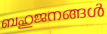
ബഹുജനങ്ങൾ